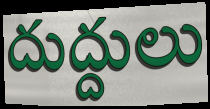
దుద్దులు